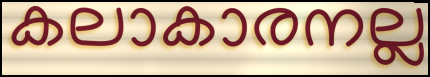
കലാകാരനല്ല